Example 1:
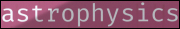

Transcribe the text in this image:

astrophysics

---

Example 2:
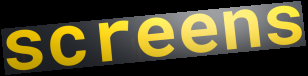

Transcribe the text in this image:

screens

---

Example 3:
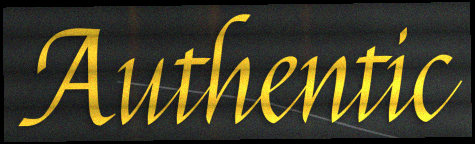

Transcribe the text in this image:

Authentic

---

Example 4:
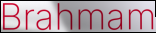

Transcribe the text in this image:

Brahmam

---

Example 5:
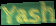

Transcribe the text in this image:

Yash